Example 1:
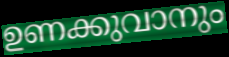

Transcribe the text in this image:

ഉണക്കുവാനും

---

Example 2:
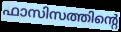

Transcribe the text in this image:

ഫാസിസത്തിന്റെ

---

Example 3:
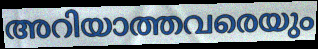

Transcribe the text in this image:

അറിയാത്തവരെയും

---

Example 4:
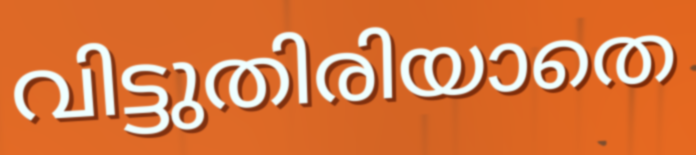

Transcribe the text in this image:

വിട്ടുതിരിയാതെ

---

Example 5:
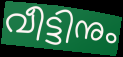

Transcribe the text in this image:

വീട്ടിനും